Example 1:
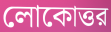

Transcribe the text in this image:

লোকোত্তর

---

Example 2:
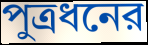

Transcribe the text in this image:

পুত্রধনের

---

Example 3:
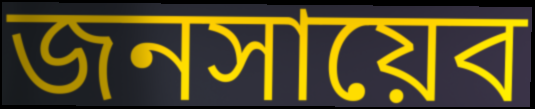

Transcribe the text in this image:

জনসায়েব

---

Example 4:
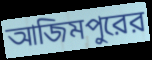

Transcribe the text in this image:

আজিমপুরের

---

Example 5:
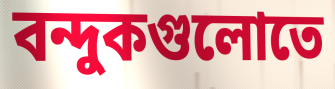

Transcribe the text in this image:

বন্দুকগুলোতে